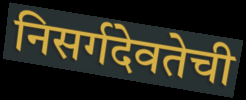
निसर्गदेवतेची